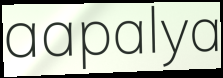
aapalya